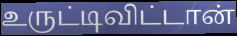
உருட்டிவிட்டான்